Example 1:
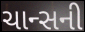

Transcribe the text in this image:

ચાન્સની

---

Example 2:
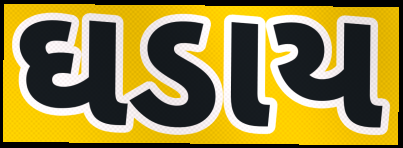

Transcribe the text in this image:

ઘડાય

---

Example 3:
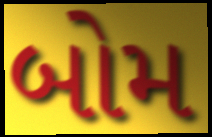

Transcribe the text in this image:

બોમ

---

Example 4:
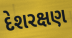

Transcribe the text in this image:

દેશરક્ષણ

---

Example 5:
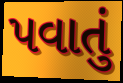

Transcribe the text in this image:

પવાતું